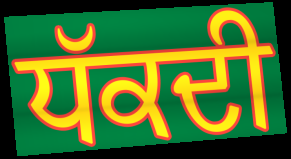
ਧੱਕਦੀ